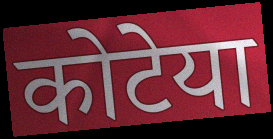
कोटेया